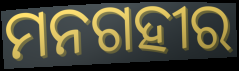
ମନଗହୀର